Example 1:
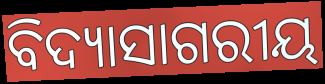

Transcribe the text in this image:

ବିଦ୍ୟାସାଗରୀୟ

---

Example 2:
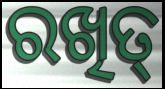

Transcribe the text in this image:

ରଖିତ୍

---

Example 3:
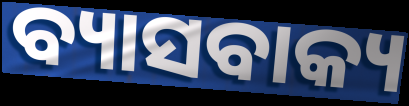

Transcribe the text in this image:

ବ୍ୟାସବାକ୍ୟ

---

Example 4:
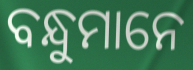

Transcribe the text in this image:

ବନ୍ଧୁମାନେ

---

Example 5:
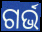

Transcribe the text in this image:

ଗର୍ଭ